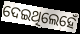
ଦେଇଥିଲେହେଁ